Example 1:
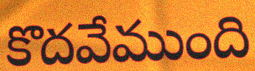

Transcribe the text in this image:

కొదవేముంది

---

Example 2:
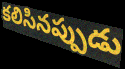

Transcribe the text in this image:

కలిసినప్పుడు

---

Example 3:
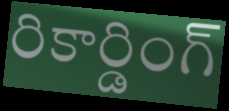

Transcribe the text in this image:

రికార్డింగ్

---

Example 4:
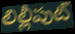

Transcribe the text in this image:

లిల్లీపుట్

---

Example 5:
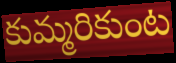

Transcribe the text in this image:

కుమ్మరికుంట